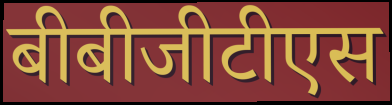
बीबीजीटीएस